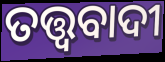
ତତ୍ତ୍ଵବାଦୀ